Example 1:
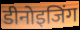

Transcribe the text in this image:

डीनोइजिंग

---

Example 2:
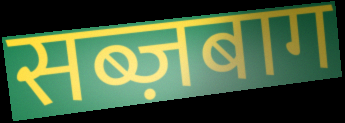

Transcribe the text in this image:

सब्ज़बाग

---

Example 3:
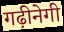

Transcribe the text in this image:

गढ़ीनेगी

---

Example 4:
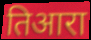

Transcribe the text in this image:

तिआरा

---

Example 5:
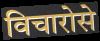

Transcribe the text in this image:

विचारोसे